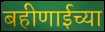
बहीणाईच्या